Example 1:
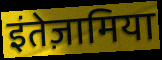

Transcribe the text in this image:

इंतेज़ामिया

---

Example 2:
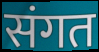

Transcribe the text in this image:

संगत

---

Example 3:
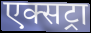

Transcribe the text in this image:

एक्सट्रा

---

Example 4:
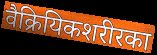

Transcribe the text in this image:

वैक्रियिकशरीरका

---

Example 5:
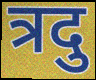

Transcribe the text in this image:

त्रदु